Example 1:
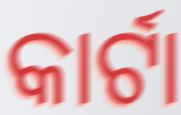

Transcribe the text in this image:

କାର୍ଟା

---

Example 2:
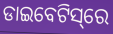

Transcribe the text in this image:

ଡାଇବେଟିସ୍‌ରେ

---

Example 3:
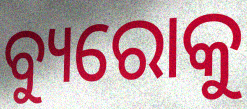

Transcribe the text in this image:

ବ୍ୟୁରୋକୁ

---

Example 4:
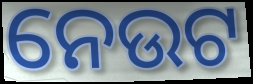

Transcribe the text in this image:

ନେଉଟ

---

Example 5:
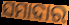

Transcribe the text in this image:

ସମାଦାର